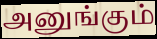
அனுங்கும்